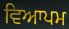
ਵਿਆਪਮ